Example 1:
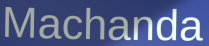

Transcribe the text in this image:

Machanda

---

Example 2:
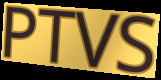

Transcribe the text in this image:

PTVS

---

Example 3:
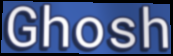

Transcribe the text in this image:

Ghosh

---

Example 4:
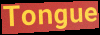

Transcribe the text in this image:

Tongue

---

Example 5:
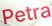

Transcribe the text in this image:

Petra